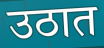
उठात